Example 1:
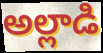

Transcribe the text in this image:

అల్లాడి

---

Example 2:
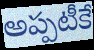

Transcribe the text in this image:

అప్పటీకే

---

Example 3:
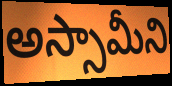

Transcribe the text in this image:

అస్సామీని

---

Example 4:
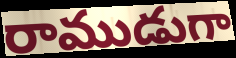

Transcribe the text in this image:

రాముడుగా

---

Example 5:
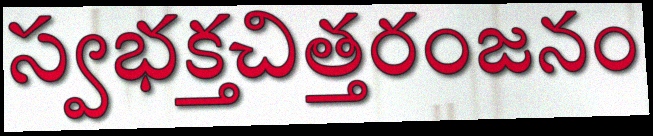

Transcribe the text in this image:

స్వభక్తచిత్తరంజనం